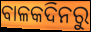
ବାଳକଦିନରୁ